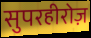
सुपरहीरोज़